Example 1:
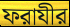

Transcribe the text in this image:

ফরাযীর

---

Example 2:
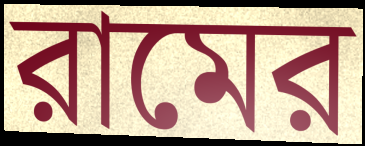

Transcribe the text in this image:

রামের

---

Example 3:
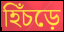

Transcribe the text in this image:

হিঁচড়ে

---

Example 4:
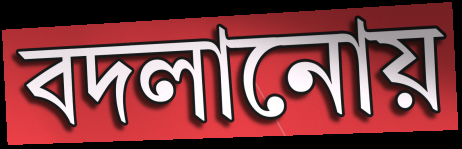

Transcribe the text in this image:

বদলানোয়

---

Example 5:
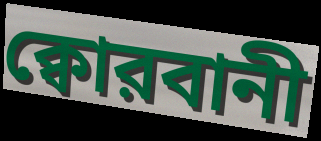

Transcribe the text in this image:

ক্বোরবানী